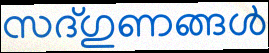
സദ്ഗുണങ്ങൾ